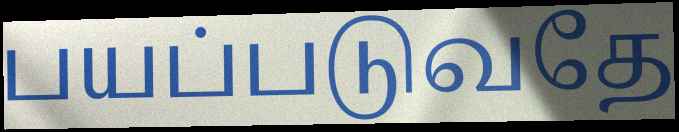
பயப்படுவதே